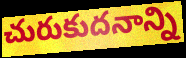
చురుకుదనాన్ని